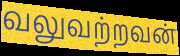
வலுவற்றவன்